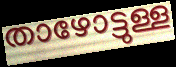
താഴോട്ടുള്ള